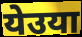
येउया